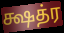
க்ஷத்ர